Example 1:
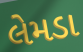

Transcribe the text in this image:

લેમડા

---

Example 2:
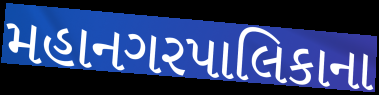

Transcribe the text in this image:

મહાનગરપાલિકાના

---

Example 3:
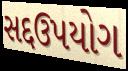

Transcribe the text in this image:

સદ્દઉપયોગ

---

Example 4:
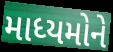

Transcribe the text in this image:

માધ્યમોને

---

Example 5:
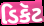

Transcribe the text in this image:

ડિકૅટ